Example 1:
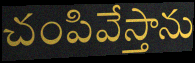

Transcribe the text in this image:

చంపివేస్తాను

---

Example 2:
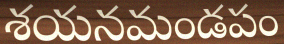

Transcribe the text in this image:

శయనమండపం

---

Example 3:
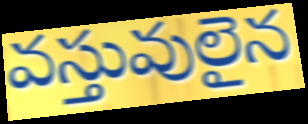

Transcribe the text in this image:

వస్తువులైన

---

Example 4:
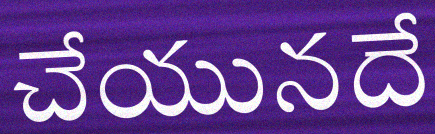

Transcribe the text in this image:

చేయునదే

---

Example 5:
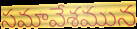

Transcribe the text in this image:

సమావేశమున